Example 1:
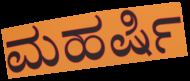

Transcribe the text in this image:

ಮಹರ್ಷಿ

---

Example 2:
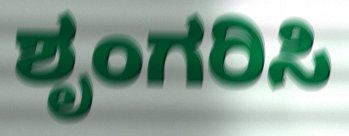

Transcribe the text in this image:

ಶೃಂಗರಿಸಿ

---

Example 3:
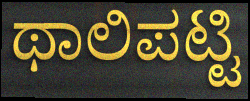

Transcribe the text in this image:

ಥಾಲಿಪಟ್ಟಿ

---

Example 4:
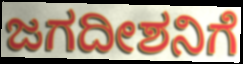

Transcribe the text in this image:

ಜಗದೀಶನಿಗೆ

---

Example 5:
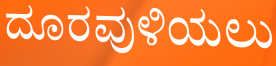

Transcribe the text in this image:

ದೂರವುಳಿಯಲು